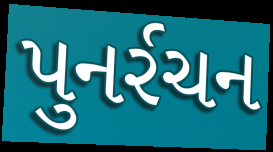
પુનર્રચન